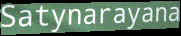
Satynarayana